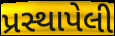
પ્રસ્થાપેલી